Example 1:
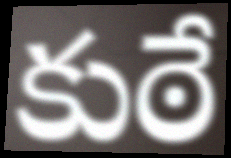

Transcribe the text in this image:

కుఠే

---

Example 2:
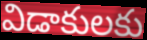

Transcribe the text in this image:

విడాకులకు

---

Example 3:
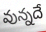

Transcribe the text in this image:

వున్నదే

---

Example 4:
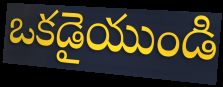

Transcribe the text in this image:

ఒకడైయుండి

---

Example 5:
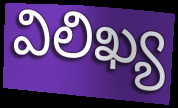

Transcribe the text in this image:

విలిఖ్య